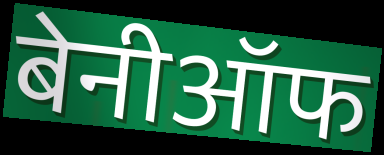
बेनीऑफ